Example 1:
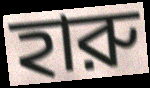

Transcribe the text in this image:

হারু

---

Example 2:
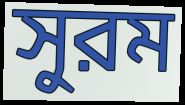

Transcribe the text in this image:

সুরম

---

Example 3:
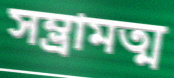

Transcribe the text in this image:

সম্ভ্রামত্ম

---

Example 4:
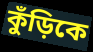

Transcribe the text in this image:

কুঁড়িকে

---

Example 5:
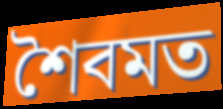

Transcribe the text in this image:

শৈবমত